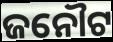
ଜନୌଟ